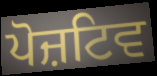
ਪੋਜ਼ਟਿਵ